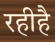
रहीहै